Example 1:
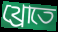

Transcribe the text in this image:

থ্রোতে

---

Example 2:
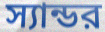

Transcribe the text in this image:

স্যান্ডর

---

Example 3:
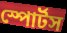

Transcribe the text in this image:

স্পোর্টস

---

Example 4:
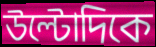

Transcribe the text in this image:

উল্টোদিকে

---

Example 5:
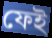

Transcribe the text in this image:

ফেই